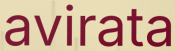
avirata